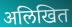
अलिखित